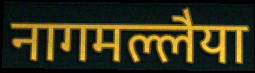
नागमल्लैया